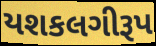
યશકલગીરૂપ